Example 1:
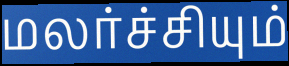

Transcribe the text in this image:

மலர்ச்சியும்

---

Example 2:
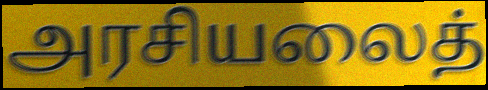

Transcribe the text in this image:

அரசியலைத்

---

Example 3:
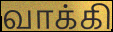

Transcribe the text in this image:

வாக்கி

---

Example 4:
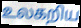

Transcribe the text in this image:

உலகறிய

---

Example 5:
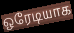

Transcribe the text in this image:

ஒரேடியாக